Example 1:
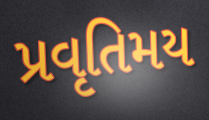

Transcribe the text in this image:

પ્રવૃતિમય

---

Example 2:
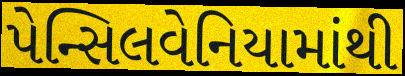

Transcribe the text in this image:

પેન્સિલવેનિયામાંથી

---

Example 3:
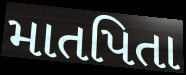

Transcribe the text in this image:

માતપિતા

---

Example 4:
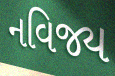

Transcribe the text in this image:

નવિજ્ય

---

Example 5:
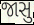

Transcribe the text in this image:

જાસુ